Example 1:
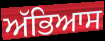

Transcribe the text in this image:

ਅੱਭਿਆਸ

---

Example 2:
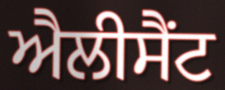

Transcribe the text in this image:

ਐਲੀਸੈਂਟ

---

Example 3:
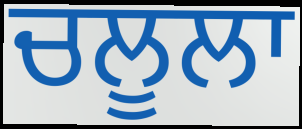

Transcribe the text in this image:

ਚਲੂਲਾ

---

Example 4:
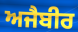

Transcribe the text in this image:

ਅਜੈਬੀਰ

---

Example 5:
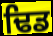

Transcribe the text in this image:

ਢਿਡ